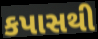
કપાસથી